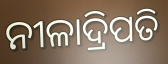
ନୀଳାଦ୍ରିପତି